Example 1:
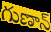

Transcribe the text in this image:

గుణాన్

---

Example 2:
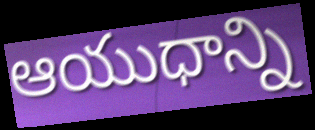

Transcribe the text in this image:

ఆయుధాన్ని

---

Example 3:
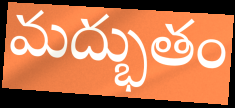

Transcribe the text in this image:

మద్భుతం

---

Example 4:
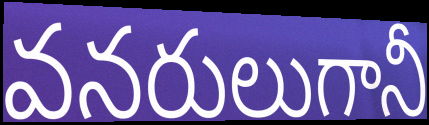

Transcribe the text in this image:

వనరులుగానీ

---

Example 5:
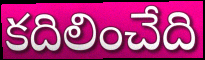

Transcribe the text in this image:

కదిలించేది